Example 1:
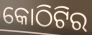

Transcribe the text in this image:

କୋଠିଟିର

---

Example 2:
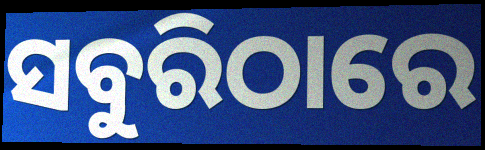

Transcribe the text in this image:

ସବୁରିଠାରେ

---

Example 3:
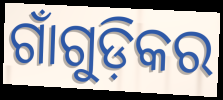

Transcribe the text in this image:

ଗାଁଗୁଡ଼ିକର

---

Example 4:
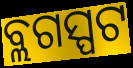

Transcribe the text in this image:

ବ୍ଲଗସ୍ପଟ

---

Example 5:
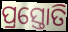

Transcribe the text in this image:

ପ୍ରସ୍ତୋତି